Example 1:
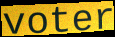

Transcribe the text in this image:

voter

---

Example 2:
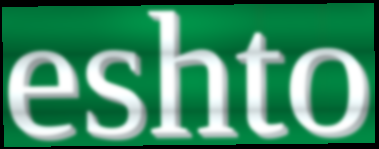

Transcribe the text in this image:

eshto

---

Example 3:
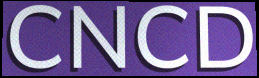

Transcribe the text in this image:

CNCD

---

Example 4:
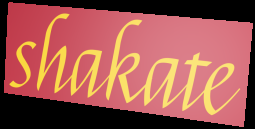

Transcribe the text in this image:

shakate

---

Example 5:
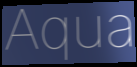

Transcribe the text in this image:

Aqua